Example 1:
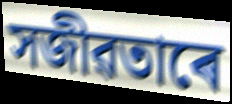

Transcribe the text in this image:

সজীৱতাৰে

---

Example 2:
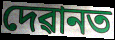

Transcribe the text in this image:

দেৱানত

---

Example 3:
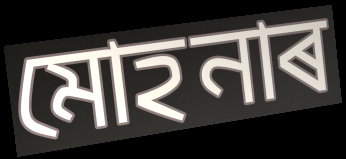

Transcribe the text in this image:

মোহনাৰ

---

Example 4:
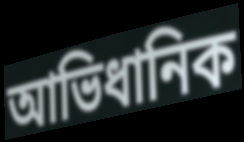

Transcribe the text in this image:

আভিধানিক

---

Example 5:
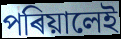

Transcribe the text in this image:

পৰিয়ালেই